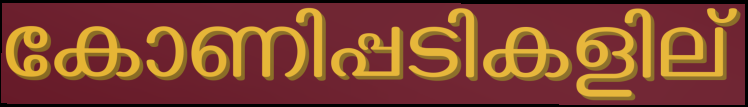
കോണിപ്പടികളില്